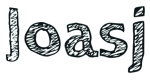
Joasj